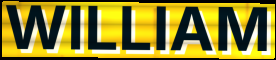
WILLIAM